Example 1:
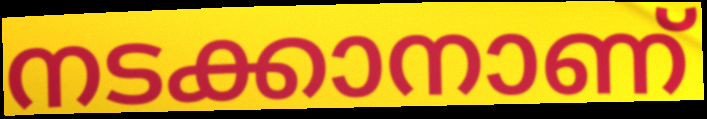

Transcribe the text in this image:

നടക്കാനാണ്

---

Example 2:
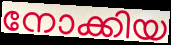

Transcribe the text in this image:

നോക്കിയ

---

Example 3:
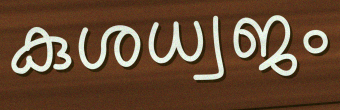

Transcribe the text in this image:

കുശധ്വജം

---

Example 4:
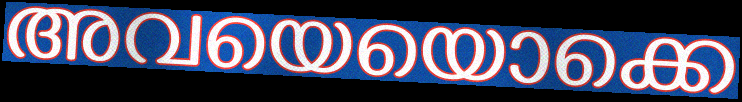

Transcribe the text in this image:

അവയെയൊക്കെ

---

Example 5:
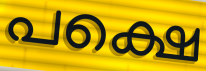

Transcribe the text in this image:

പക്ഷെ